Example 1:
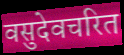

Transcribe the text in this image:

वसुदेवचरित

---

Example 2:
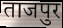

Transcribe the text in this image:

ताजपुर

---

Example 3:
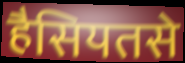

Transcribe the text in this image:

हैसियतसे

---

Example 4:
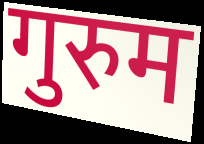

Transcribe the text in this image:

गुरुम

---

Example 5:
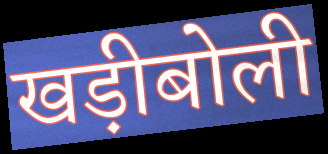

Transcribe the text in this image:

खड़ीबोली